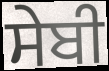
ਸੇਬੀ